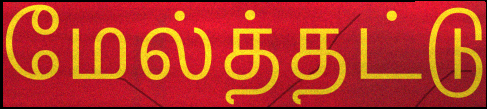
மேல்த்தட்டு